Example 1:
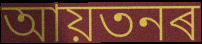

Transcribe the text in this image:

আয়তনৰ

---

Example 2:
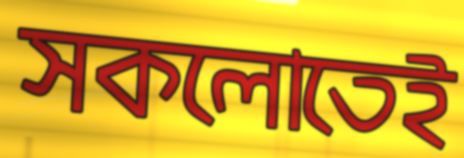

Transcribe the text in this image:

সকলোতেই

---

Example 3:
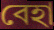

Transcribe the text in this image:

বেহা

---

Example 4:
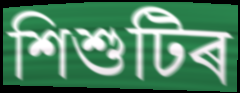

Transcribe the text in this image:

শিশুটিৰ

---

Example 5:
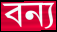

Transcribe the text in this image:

বন্য